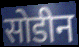
सोडीन